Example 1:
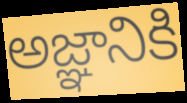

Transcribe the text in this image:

అజ్ఞానికి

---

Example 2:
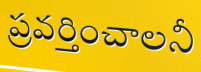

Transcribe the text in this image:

ప్రవర్తించాలనీ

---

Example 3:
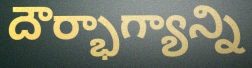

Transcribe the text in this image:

దౌర్భాగ్యాన్ని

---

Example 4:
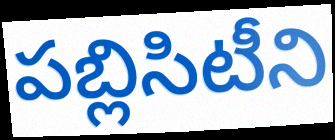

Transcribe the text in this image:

పబ్లిసిటీని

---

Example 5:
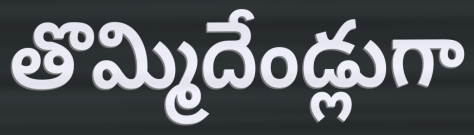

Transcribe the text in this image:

తొమ్మిదేండ్లుగా